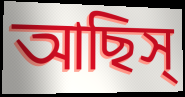
আছিস্